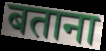
बताना